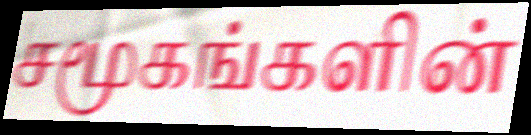
சமூகங்களின்